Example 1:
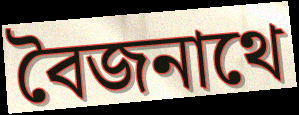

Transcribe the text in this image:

বৈজনাথে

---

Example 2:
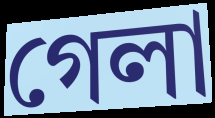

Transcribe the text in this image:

গেলা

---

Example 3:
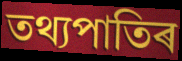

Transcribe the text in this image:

তথ্যপাতিৰ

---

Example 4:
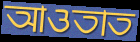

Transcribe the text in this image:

আওতাত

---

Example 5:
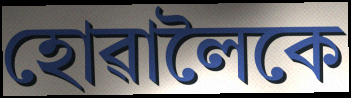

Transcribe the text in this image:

হোৱালৈকে